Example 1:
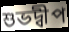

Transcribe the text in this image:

শুভদ্বীপ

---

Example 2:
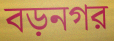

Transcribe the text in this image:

বড়নগর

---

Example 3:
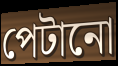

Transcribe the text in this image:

পেটানো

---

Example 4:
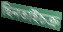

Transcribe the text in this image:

ছিনতাইচক্র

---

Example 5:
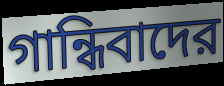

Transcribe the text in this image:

গান্ধিবাদের